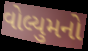
વોલ્યુમનો